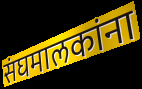
संघमालकांना